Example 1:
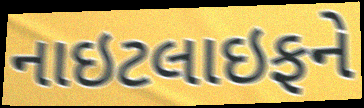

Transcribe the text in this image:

નાઇટલાઇફને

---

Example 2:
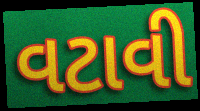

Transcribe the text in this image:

વટાવી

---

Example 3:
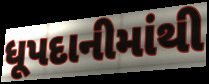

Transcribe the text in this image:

ધૂપદાનીમાંથી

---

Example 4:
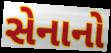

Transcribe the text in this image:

સેનાનો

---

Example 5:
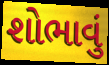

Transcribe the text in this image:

શોભાવું